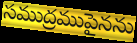
సముద్రముపైనను